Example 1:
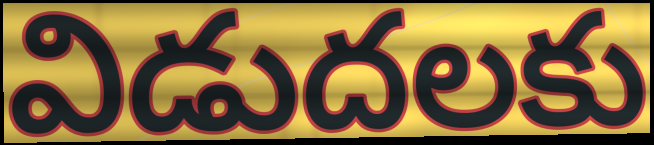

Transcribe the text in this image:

విడుదలకు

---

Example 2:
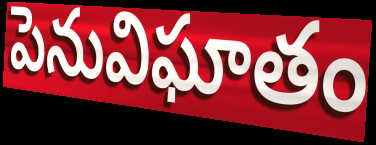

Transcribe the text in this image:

పెనువిఘాతం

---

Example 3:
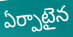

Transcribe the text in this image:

ఏర్పాటైన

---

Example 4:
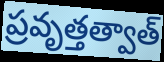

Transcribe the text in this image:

ప్రవృత్తత్వాత్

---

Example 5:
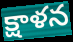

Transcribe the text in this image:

క్షాళన